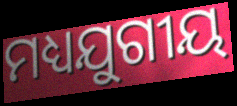
ମଧ୍ଯଯୁଗୀୟ